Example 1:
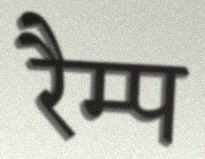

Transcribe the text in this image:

रैम्प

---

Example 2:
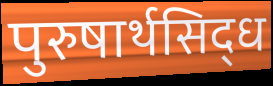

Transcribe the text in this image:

पुरुषार्थसिद्ध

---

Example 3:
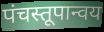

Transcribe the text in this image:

पंचस्तूपान्वय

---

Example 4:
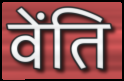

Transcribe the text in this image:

वेंति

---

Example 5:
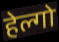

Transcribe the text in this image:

हेल्गो